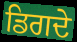
ਡਿਗਦੇ